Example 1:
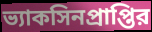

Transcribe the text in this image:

ভ্যাকসিনপ্রাপ্তির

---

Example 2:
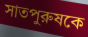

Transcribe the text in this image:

সাতপুরুষকে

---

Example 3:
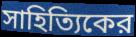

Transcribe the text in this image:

সাহিত্যিকের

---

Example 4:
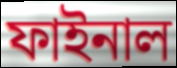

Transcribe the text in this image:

ফাইনাল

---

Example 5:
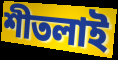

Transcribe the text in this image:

শীতলাই